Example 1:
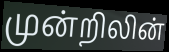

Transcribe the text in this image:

முன்றிலின்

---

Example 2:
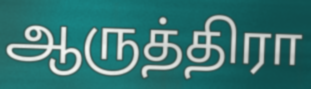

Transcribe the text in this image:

ஆருத்திரா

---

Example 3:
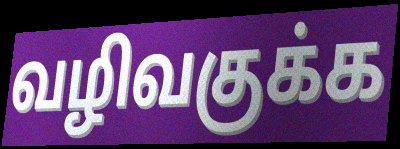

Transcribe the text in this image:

வழிவகுக்க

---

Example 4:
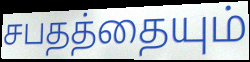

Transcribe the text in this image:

சபதத்தையும்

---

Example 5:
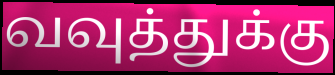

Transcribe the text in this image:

வவுத்துக்கு